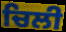
ਚਿਲੀ